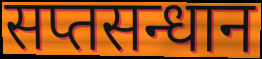
सप्तसन्धान